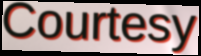
Courtesy